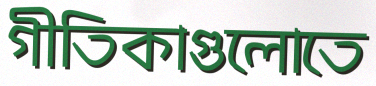
গীতিকাগুলোতে